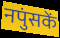
नपुंसकें